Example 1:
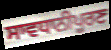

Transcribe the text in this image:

ਸਾਵਧਾਨੀਪੂਰਣ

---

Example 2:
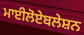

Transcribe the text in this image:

ਮਾਈਲੋਏਬਲੇਸ਼ਨ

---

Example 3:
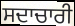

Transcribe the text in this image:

ਸਦਾਚਾਰੀ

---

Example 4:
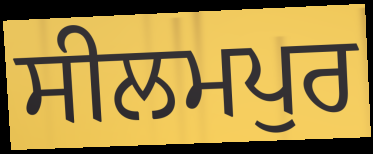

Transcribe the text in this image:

ਸੀਲਮਪੁਰ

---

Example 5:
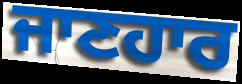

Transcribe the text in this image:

ਜਾਣਹਾਰ